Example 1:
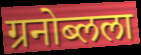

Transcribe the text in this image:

ग्रनोब्लला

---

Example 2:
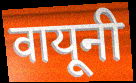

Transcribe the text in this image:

वायूनी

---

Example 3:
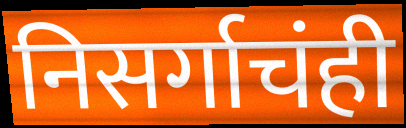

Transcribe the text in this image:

निसर्गाचंही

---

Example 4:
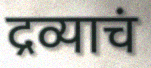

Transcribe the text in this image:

द्रव्याचं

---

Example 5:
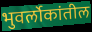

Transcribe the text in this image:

भुवर्लोकांतील